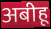
अबीहू